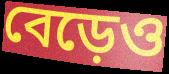
বেড়েও